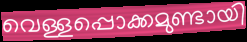
വെള്ളപ്പൊക്കമുണ്ടായി